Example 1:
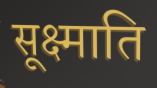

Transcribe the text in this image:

सूक्ष्माति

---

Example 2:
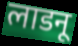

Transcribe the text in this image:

लाडनू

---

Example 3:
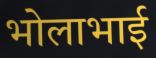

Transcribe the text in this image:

भोलाभाई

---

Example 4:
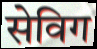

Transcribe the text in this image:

सेविग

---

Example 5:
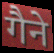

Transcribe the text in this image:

गैने